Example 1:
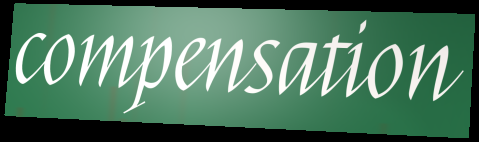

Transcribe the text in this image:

compensation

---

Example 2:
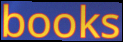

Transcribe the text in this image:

books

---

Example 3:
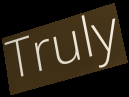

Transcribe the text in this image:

Truly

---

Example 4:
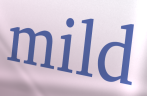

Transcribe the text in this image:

mild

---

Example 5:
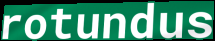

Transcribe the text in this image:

rotundus